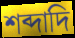
শব্দাদি